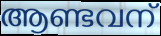
ആണ്ടവന്